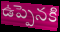
ఉప్పెనకి